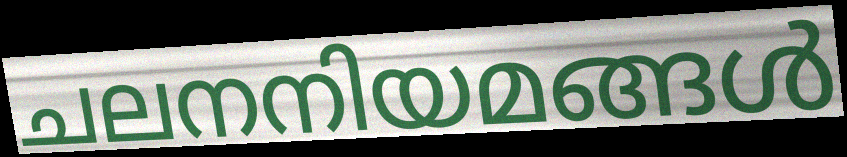
ചലനനിയമങ്ങൾ